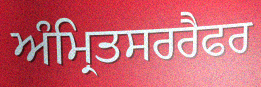
ਅੰਮ੍ਰਿਤਸਰਰੈਫਰ